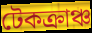
টেকক্রাঞ্চ